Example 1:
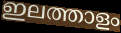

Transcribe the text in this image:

ഇലത്താളം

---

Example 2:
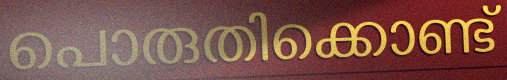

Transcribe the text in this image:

പൊരുതിക്കൊണ്ട്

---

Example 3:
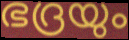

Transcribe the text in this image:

ഭദ്രയും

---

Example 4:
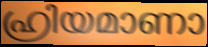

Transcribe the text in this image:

ഹ്രിയമാണാ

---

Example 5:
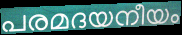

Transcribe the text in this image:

പരമദയനീയം